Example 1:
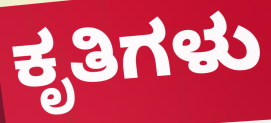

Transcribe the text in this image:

ಕೃತಿಗಳು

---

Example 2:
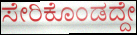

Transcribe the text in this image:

ಸೇರಿಕೊಂಡದ್ದೇ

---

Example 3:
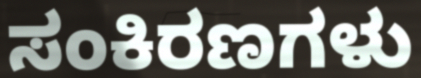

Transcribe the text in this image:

ಸಂಕಿರಣಗಳು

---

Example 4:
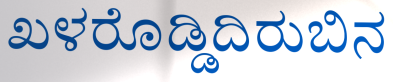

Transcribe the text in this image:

ಖಳರೊಡ್ಡಿದಿರುಬಿನ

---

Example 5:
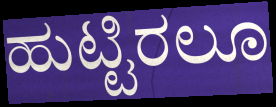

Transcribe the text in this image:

ಹುಟ್ಟಿರಲೂ